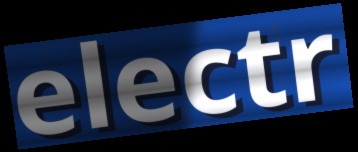
electr